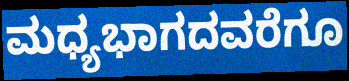
ಮಧ್ಯಭಾಗದವರೆಗೂ